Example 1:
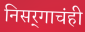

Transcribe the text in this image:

निसर्गाचंही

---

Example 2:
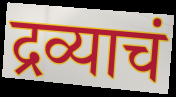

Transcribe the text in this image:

द्रव्याचं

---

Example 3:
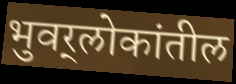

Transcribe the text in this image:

भुवर्लोकांतील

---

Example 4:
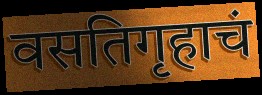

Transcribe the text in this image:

वसतिगृहाचं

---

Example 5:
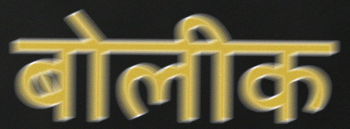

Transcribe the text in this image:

बोलीक